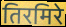
तिरमिरे